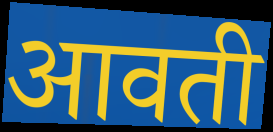
आवती